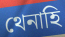
থেনাহি